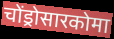
चोंड्रोसारकोमा